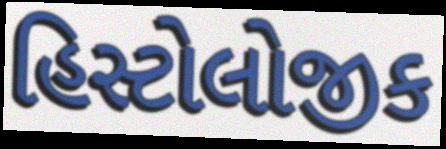
હિસ્ટોલોજીક